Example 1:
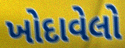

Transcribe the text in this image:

ખોદાવેલો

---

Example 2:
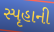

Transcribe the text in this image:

સ્પૃહાની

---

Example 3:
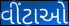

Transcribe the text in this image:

વીંટાઓ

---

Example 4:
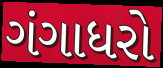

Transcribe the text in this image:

ગંગાધરો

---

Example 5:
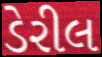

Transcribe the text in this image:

ડેરીલ